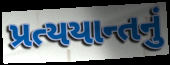
પ્રત્યયાન્તનું